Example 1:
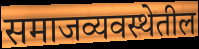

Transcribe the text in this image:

समाजव्यवस्थेतील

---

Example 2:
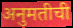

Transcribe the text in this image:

अनुमतीची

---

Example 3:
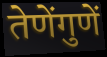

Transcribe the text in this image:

तेणेंगुणें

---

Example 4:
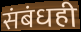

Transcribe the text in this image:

संबंधही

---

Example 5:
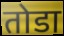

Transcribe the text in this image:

तोडा